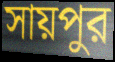
সায়পুর